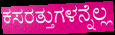
ಕಸರತ್ತುಗಳನ್ನೆಲ್ಲ